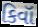
કિવૉ